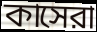
কাসেরা